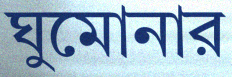
ঘুমোনার